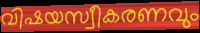
വിഷയസ്വീകരണവും